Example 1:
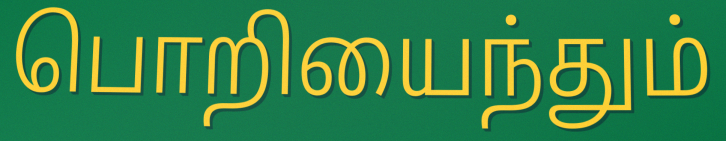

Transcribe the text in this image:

பொறியைந்தும்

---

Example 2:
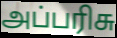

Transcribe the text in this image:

அப்பரிசு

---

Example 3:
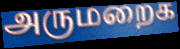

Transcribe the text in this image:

அருமறைக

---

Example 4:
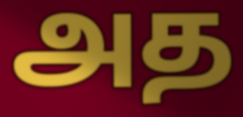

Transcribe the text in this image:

அத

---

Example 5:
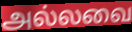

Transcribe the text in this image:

அல்லவை